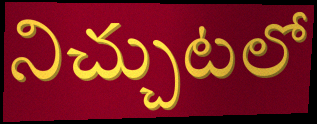
నిచ్చుటలో